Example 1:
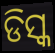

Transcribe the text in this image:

ଡିସ୍କ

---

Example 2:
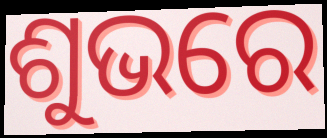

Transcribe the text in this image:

ଶୁଭରେ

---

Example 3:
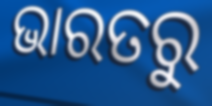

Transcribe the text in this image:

ଭାରତରୁ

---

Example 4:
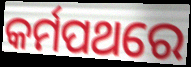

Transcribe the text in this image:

କର୍ମପଥରେ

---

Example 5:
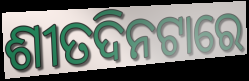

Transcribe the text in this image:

ଶୀତଦିନଟାରେ